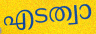
എടത്വാ